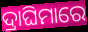
ଦ୍ରାଘିମାରେ